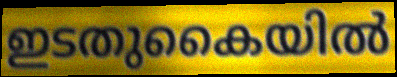
ഇടതുകൈയിൽ